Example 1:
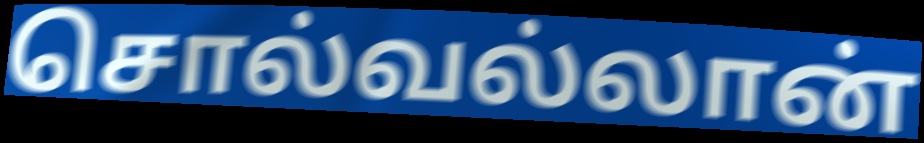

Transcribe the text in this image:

சொல்வல்லான்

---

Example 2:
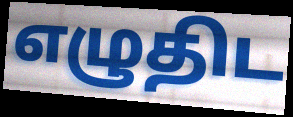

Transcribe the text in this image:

எழுதிட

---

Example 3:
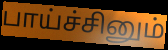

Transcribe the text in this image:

பாய்ச்சினும்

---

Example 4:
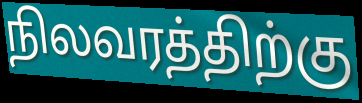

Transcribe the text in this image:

நிலவரத்திற்கு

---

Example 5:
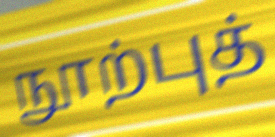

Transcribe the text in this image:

நூற்புத்